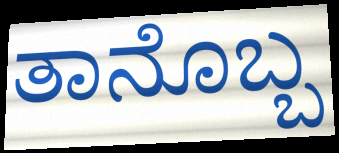
ತಾನೊಬ್ಬ